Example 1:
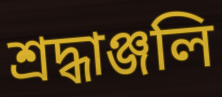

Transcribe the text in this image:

শ্ৰদ্ধাঞ্জলি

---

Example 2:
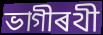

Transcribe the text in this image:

ভাগীৰথী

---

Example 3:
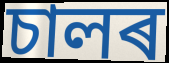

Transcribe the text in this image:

চালৰ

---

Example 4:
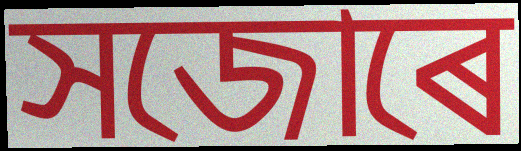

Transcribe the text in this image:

সজোৰে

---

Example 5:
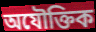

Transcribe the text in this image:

অযৌক্তিক